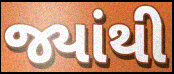
જ્યાંથી